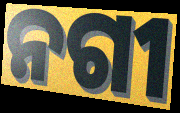
ନଗୀ